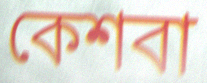
কেশবা